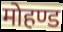
मोहण्ड